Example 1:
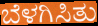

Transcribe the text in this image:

ಬೆಳಗಿಸಿತು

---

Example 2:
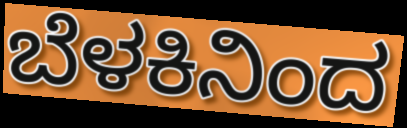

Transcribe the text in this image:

ಬೆಳಕಿನಿಂದ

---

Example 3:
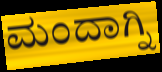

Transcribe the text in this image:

ಮಂದಾಗ್ನಿ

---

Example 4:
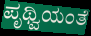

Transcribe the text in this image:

ಪೃಥ್ವಿಯಂತೆ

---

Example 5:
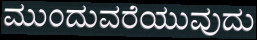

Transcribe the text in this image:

ಮುಂದುವರೆಯುವುದು